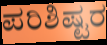
ಪರಿಶಿಷ್ಟರ